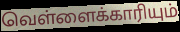
வெள்ளைக்காரியும்